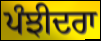
ਪੰਝੀਦਰਾ